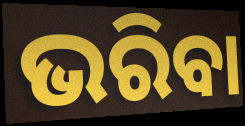
ଭରିବା